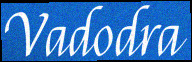
Vadodra